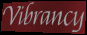
Vibrancy